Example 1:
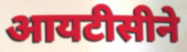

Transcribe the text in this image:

आयटीसीने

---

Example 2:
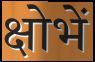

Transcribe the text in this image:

क्षोभें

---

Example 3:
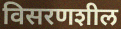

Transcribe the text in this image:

विसरणशील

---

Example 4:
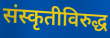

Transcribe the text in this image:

संस्कृतीविरुद्ध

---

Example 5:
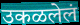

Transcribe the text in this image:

उकळलेलं